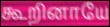
கூறினாயே